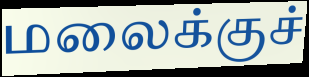
மலைக்குச்